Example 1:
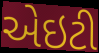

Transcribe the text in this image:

એઇટી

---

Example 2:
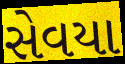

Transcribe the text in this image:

સેવયા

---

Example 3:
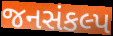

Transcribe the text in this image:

જનસંકલ્પ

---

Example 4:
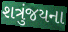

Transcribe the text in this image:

શત્રુંજયના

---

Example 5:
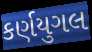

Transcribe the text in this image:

કર્ણયુગલ